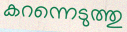
കറന്നെടുത്തു